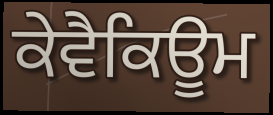
ਕੇਵੈਕਿਊਮ